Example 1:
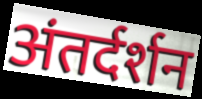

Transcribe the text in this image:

अंतर्दर्शन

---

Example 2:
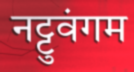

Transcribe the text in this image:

नट्टुवंगम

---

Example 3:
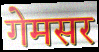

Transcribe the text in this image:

गेमसर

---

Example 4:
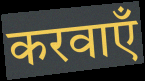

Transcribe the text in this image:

करवाएँ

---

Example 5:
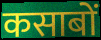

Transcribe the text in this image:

कसाबों